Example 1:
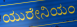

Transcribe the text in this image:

ಯುರೇನಿಯಂ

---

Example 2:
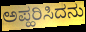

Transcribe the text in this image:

ಅಪ್ಹರಿಸಿದನು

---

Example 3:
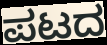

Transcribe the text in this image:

ಪಟದ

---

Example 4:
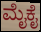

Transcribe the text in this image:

ಮೈಕೈ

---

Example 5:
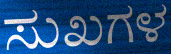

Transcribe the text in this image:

ಸುಖಗಳ